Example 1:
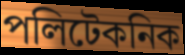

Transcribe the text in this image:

পলিটেকনিক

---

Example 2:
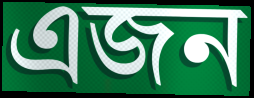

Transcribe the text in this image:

এজন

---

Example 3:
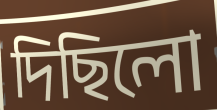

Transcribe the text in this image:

দিছিলো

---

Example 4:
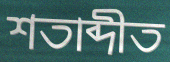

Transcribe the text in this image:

শতাব্দীত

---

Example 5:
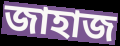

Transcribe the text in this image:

জাহাজ